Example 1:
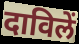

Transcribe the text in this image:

दाविलें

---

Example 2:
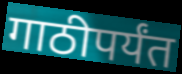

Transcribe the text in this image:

गाठीपर्यंत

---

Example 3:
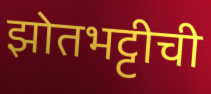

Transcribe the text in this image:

झोतभट्टीची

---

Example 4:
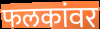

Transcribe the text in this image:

फलकांवर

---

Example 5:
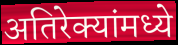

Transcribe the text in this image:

अतिरेक्यांमध्ये